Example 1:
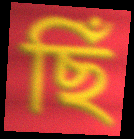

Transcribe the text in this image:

ছিঁ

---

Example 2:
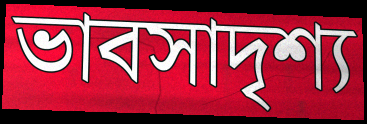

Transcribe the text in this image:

ভাবসাদৃশ্য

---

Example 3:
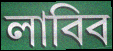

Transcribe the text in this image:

লাবিব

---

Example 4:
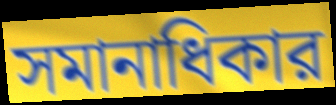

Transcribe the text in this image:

সমানাধিকার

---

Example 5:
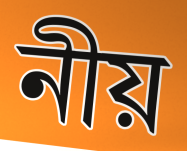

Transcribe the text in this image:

নীয়